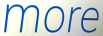
more